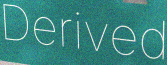
Derived